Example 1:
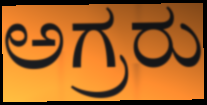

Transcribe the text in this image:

ಅಗ್ರರು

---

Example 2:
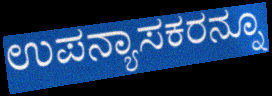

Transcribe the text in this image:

ಉಪನ್ಯಾಸಕರನ್ನೂ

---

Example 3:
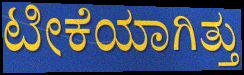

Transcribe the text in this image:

ಟೀಕೆಯಾಗಿತ್ತು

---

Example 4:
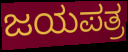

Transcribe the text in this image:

ಜಯಪತ್ರ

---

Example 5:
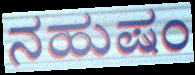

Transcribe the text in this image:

ನಹುಷಂ